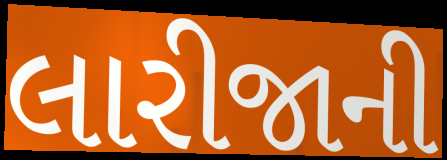
લારીજાની